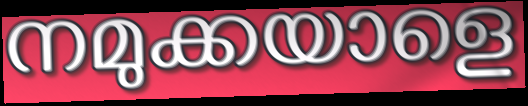
നമുക്കയാളെ